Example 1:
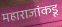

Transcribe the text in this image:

महाराजांकडू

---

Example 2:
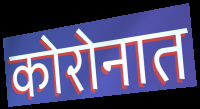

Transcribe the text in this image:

कोरोनात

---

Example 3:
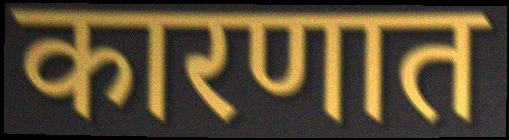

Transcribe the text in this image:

कारणात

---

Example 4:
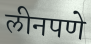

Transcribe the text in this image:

लीनपणे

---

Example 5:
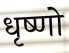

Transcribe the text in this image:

धृष्णो